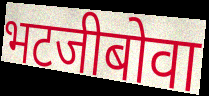
भटजीबोवा